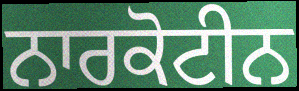
ਨਾਰਕੋਟੀਨ